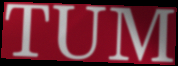
TUM